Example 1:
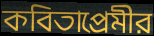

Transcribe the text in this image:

কবিতাপ্রেমীর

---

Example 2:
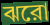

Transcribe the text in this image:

ঝরো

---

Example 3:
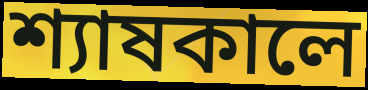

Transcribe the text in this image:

শ্যাষকালে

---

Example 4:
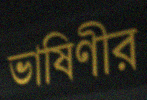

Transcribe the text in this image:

ভাষিণীর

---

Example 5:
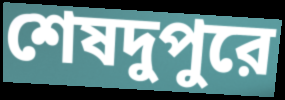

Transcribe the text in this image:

শেষদুপুরে